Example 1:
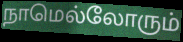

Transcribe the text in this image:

நாமெல்லோரும்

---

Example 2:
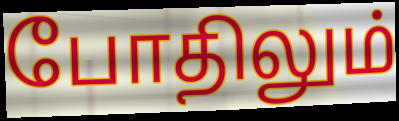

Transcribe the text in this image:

போதிலும்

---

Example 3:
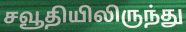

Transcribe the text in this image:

சவூதியிலிருந்து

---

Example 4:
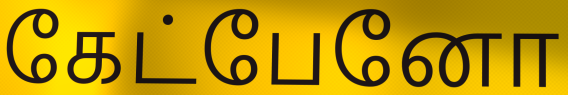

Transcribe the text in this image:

கேட்பேனோ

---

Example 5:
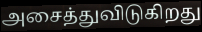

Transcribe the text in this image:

அசைத்துவிடுகிறது